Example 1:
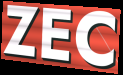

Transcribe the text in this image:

ZEC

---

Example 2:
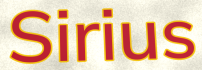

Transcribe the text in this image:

Sirius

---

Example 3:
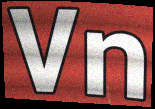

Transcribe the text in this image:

Vn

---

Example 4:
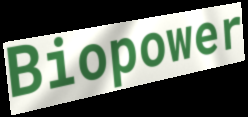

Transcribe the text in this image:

Biopower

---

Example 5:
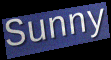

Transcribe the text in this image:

Sunny